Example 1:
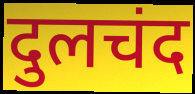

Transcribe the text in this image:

दुलचंद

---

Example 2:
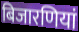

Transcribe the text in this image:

बिजारणियां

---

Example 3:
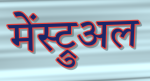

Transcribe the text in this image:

मेंस्ट्रुअल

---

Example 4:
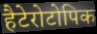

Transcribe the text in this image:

हैटेरोटोपिक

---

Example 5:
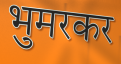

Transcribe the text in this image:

भुमरकर